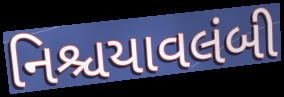
નિશ્ચયાવલંબી